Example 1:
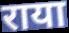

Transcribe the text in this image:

राया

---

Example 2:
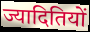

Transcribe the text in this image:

ज्यादितियों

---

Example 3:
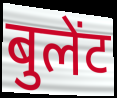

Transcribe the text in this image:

बुलेंट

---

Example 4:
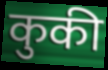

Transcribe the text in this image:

कुकी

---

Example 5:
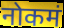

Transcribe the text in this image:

नोकमं